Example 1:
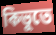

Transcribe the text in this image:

কিভুতে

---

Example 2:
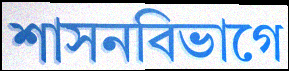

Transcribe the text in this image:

শাসনবিভাগে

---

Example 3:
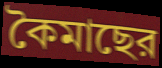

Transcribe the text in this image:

কৈমাছের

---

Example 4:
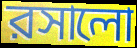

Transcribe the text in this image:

রসালো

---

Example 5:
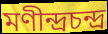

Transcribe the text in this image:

মণীন্দ্রচন্দ্র